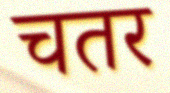
चतर